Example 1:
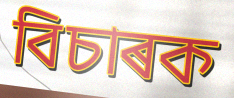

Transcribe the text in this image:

বিচাৰক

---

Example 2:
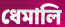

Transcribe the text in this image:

ধেমালি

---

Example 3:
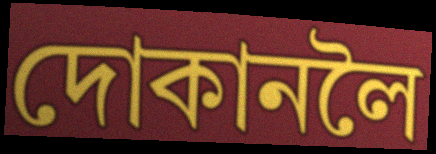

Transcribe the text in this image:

দোকানলৈ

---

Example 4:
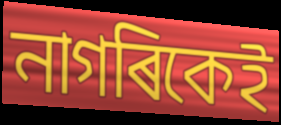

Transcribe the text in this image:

নাগৰিকেই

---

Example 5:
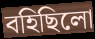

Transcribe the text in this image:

বহিছিলো